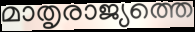
മാതൃരാജ്യത്തെ